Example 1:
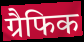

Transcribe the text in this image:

ग्रैफिक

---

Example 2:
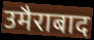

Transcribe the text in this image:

उमैराबाद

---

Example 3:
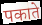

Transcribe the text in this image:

पकाते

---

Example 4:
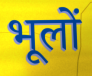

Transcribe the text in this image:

भूलों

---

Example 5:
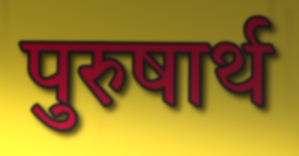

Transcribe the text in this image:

पुरुषार्थ